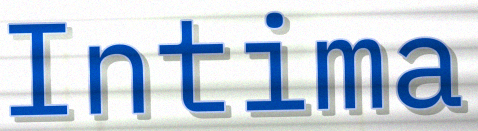
Intima